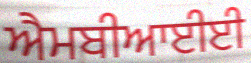
ਐਮਬੀਆਈਈ